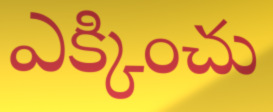
ఎక్కించు